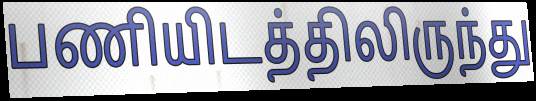
பணியிடத்திலிருந்து